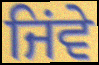
ਜਿਂਵੇ